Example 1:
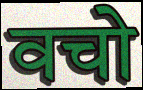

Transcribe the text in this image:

वचो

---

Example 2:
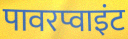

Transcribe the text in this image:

पावरप्वाइंट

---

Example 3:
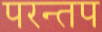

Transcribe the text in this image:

परन्तप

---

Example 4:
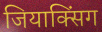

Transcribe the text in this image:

जियाक्सिंग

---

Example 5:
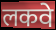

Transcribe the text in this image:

लकवे